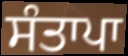
ਸੰਤਾਪਾ